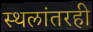
स्थलांतरही